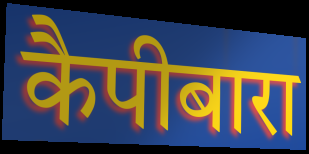
कैपीबारा